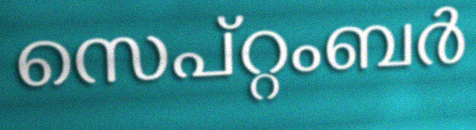
സെപ്റ്റംബർ